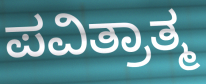
ಪವಿತ್ರಾತ್ಮ